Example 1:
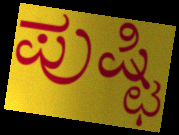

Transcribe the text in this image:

ಪುಷ್ಟಿ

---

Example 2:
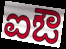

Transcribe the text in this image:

ಐಔ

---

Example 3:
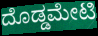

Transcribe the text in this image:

ದೊಡ್ಡಮೇಟಿ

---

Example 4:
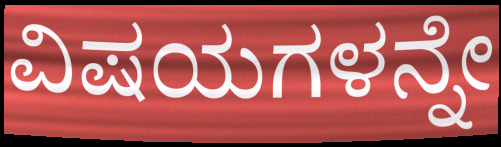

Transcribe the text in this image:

ವಿಷಯಗಳನ್ನೇ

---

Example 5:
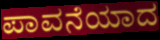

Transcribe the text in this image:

ಪಾವನೆಯಾದ